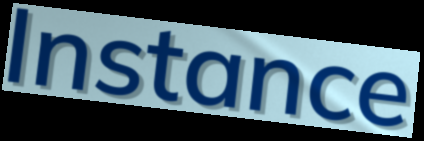
Instance